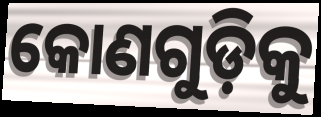
କୋଣଗୁଡ଼ିକୁ